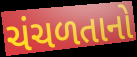
ચંચળતાનો